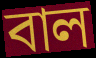
বাল